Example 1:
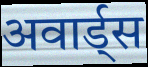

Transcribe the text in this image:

अवार्ड्स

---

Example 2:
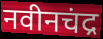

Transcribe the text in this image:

नवीनचंद्र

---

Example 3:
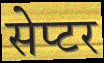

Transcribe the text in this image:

सेप्टर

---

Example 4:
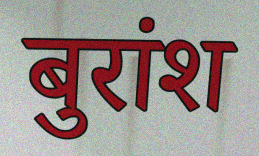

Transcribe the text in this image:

बुरांश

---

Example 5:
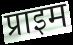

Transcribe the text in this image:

प्राइम